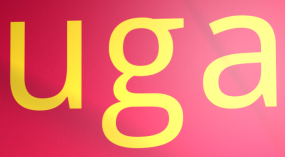
uga